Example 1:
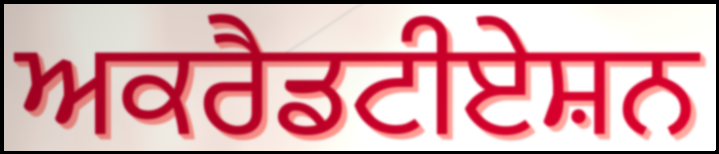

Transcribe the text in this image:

ਅਕਰੈਡਟੀਏਸ਼ਨ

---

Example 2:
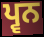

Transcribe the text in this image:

ਪ੍ਵਨ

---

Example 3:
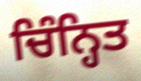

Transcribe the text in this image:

ਚਿੰਨ੍ਹਿਤ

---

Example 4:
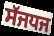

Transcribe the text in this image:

ਸੱਜਧਜ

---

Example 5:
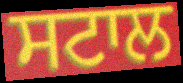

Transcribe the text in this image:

ਸਟਾਲ